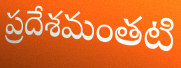
ప్రదేశమంతటి